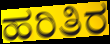
ಹರಿತಿರ